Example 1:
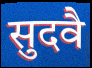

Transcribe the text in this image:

सुदवै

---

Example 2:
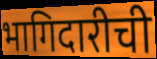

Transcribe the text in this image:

भागिदारीची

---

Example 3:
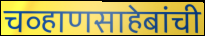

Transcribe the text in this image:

चव्हाणसाहेबांची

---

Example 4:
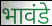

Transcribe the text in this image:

भावंडे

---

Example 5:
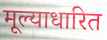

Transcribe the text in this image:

मूल्याधारित